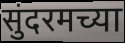
सुंदरमच्या